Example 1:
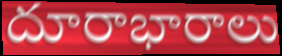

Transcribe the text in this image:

దూరాభారాలు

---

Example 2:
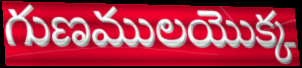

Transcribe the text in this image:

గుణములయొక్క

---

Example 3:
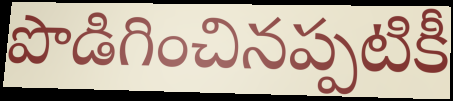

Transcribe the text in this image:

పొడిగించినప్పటికీ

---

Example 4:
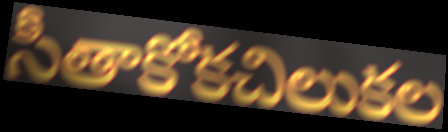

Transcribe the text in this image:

సీతాకోకచిలుకల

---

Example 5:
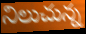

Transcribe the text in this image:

నిలుచున్న